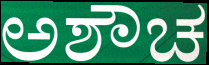
ಅಶೌಚ